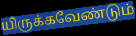
யிருக்கவேண்டும்